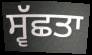
ਸ੍ਵੱਛਤਾ